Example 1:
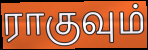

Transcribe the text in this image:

ராகுவும்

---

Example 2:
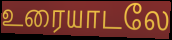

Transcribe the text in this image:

உரையாடலே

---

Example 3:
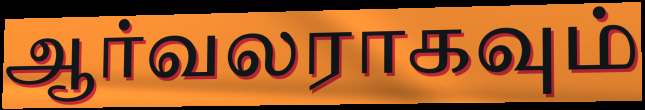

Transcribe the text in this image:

ஆர்வலராகவும்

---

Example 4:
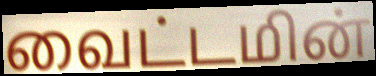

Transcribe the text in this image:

வைட்டமின்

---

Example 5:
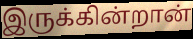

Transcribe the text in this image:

இருக்கின்றான்